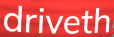
driveth